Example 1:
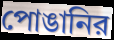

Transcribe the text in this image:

পোঙানির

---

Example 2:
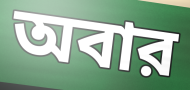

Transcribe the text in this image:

অবার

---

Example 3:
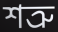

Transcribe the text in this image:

শত্রু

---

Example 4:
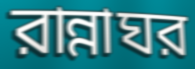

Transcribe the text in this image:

রান্নাঘর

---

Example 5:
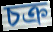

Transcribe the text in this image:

চক্র